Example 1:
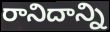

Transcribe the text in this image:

రానిదాన్ని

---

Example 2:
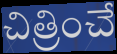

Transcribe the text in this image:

చిత్రించే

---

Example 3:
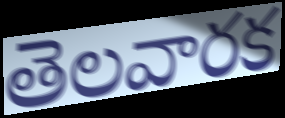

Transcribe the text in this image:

తెలవారక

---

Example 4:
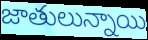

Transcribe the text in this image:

జాతులున్నాయి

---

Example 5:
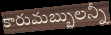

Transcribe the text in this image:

కారుమబ్బులన్నీ